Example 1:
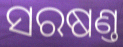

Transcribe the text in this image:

ସରଷଣ୍ତ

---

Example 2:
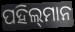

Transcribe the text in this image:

ପହିଲ୍‌ମାନ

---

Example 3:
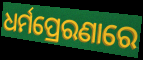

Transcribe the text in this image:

ଧର୍ମପ୍ରେରଣାରେ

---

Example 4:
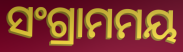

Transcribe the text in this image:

ସଂଗ୍ରାମମୟ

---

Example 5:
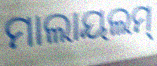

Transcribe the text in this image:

ମାଲାୟଲମ୍